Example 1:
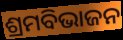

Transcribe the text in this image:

ଶ୍ରମବିଭାଜନ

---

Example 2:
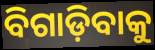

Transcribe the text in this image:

ବିଗାଡ଼ିବାକୁ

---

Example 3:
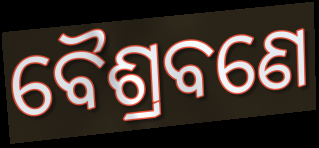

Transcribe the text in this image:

ବୈଶ୍ରବଣେ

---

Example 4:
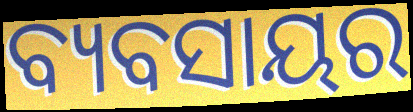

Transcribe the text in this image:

ବ୍ୟବସାୟର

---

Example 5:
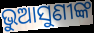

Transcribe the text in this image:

ଭୁଆସୁଣୀଙ୍କ